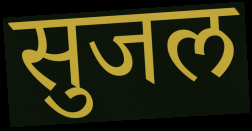
सुजल